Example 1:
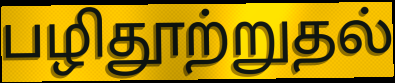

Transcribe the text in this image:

பழிதூற்றுதல்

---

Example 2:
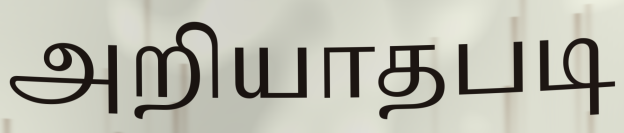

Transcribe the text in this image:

அறியாதபடி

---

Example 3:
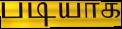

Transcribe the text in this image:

படியாக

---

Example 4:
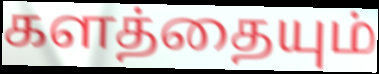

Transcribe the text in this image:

களத்தையும்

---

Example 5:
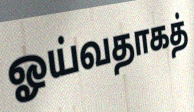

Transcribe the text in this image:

ஓய்வதாகத்